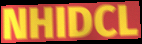
NHIDCL